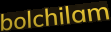
bolchilam